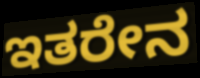
ಇತರೇನ